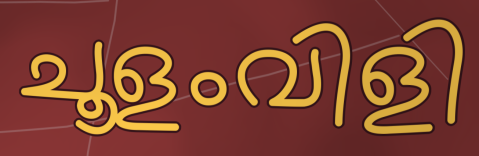
ചൂളംവിളി